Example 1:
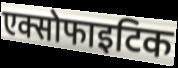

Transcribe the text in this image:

एक्सोफाइटिक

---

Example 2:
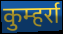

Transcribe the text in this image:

कुम्हर्रा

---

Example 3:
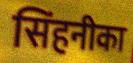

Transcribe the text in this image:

सिंहनीका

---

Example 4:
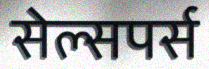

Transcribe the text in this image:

सेल्सपर्स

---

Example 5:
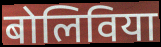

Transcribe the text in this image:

बोलिविया